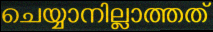
ചെയ്യാനില്ലാത്തത്